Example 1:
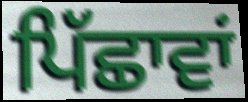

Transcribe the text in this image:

ਪਿੱਛਾਵਾਂ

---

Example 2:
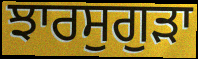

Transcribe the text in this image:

ਝਾਰਸੁਗੁੜਾ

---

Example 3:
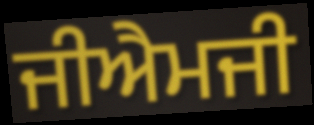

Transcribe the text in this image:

ਜੀਐਮਜੀ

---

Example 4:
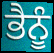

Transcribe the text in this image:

ਭੈਨੂੰ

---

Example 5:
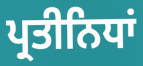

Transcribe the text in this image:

ਪ੍ਰਤੀਨਿਧਾਂ